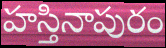
హస్తినాపురం